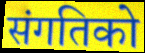
संगतिको